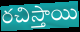
రచిస్తాయి